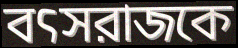
বৎসরাজকে